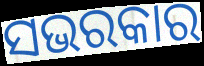
ସଭରକାର